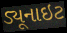
ડ્યૂનાઇટ